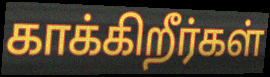
காக்கிறீர்கள்